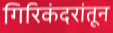
गिरिकंदरांतून